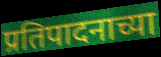
प्रतिपादनाच्या